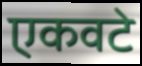
एकवटे